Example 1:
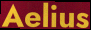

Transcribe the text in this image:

Aelius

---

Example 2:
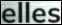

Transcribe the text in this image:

elles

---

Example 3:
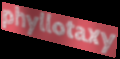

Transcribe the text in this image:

phyllotaxy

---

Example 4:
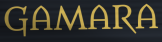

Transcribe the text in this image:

GAMARA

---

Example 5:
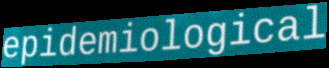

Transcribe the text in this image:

epidemiological